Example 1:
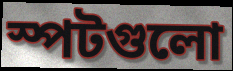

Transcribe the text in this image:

স্পটগুলো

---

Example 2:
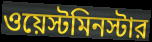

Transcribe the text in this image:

ওয়েস্টমিনস্টার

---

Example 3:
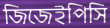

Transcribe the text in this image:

জিজেইপিসি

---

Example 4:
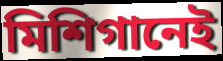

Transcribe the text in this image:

মিশিগানেই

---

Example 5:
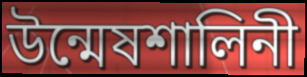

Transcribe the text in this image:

উন্মেষশালিনী